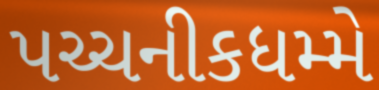
પચ્ચનીકધમ્મે